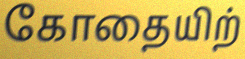
கோதையிற்